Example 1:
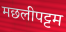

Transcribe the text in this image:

मछलीपट्टम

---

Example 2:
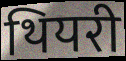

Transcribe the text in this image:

थियरी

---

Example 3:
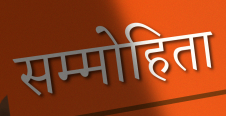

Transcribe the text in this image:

सम्मोहिता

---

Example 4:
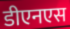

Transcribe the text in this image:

डीएनएस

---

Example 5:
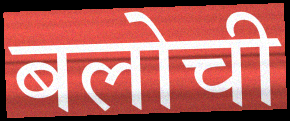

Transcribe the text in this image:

बलोची